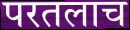
परतलाच